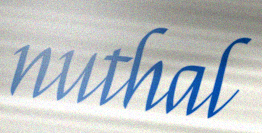
nuthal